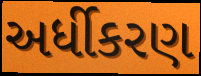
અર્ધીકરણ